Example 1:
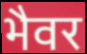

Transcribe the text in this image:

भैवर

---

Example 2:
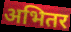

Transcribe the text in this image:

अभितर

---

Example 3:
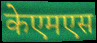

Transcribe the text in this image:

केएमएस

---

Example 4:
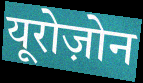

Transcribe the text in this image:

यूरोज़ोन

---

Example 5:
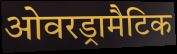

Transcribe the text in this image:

ओवरड्रामैटिक